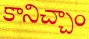
కానిచ్చాం